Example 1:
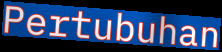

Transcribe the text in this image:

Pertubuhan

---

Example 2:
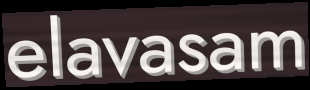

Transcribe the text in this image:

elavasam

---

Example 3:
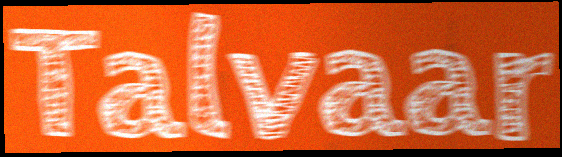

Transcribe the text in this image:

Talvaar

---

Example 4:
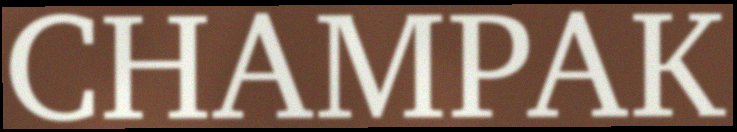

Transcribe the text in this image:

CHAMPAK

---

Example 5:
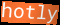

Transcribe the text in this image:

hotly